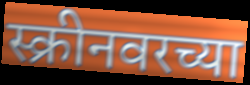
स्क्रीनवरच्या